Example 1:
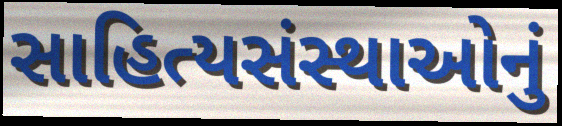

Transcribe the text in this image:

સાહિત્યસંસ્થાઓનું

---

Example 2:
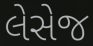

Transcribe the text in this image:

લેસેજ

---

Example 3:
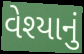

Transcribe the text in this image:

વેશ્યાનું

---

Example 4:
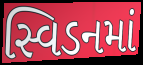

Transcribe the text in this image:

સ્વિડનમાં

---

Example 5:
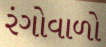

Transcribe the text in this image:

રંગોવાળો